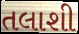
તલાશી